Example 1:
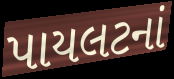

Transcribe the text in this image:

પાયલટનાં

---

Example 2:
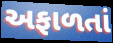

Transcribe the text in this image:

અફાળતાં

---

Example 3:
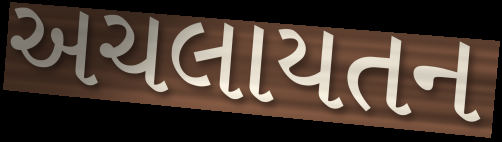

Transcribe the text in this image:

અચલાયતન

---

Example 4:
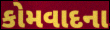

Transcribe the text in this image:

કોમવાદના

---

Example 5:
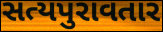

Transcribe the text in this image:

સત્યપુરાવતાર